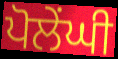
ਪੋਲੇਂਘੀ